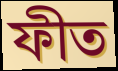
ফীত